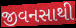
જીવનસાથી